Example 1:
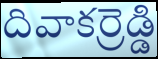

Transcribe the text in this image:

దివాకర్రెడ్డి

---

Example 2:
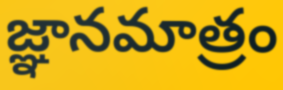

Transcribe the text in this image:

జ్ఞానమాత్రం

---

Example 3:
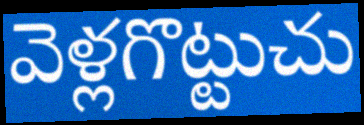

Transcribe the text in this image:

వెళ్లగొట్టుచు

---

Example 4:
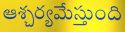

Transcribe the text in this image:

ఆశ్చర్యమేస్తుంది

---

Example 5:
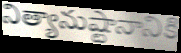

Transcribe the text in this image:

నిత్యానుష్టానానికి